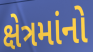
ક્ષેત્રમાંનો